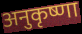
अनुकृष्णा